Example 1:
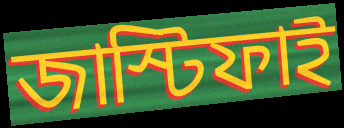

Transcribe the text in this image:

জাস্টিফাই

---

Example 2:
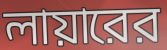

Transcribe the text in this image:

লায়ারের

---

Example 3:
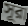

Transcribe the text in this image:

সূরা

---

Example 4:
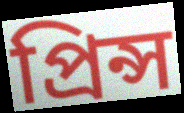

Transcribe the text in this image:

প্রিন্স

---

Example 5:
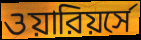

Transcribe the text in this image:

ওয়ারিয়র্সে